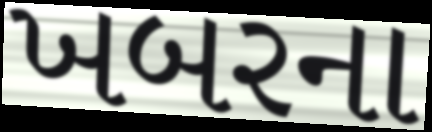
ખબરના